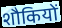
शौकियों